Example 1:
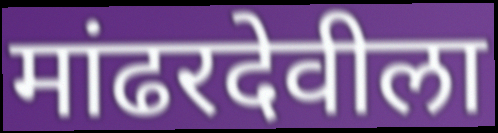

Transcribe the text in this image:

मांढरदेवीला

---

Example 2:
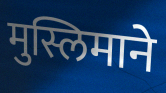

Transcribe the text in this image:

मुस्लिमाने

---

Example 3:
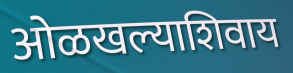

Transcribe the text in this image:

ओळखल्याशिवाय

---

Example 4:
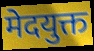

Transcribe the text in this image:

मेदयुक्त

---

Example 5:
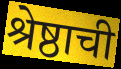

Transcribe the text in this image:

श्रेष्ठाची